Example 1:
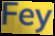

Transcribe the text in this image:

Fey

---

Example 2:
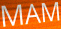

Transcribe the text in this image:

MAM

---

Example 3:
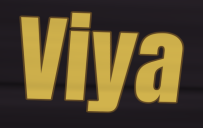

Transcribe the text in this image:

Viya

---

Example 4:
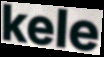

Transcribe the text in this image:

kele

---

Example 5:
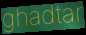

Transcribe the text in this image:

ghadtar